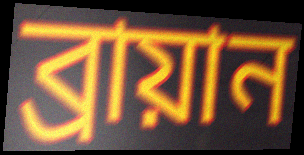
ব্রায়ান